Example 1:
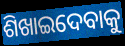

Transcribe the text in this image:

ଶିଖାଇଦେବାକୁ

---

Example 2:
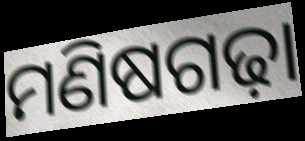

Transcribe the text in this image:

ମଣିଷଗଢ଼ା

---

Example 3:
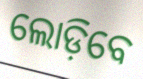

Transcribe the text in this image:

ଲୋଡ଼ିବେ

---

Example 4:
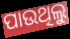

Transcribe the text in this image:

ପାଉଥିଲୁ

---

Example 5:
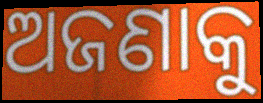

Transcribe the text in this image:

ଅଜଣାକୁ